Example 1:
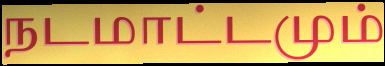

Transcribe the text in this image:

நடமாட்டமும்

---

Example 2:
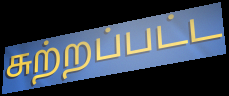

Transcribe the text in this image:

சுற்றப்பட்ட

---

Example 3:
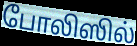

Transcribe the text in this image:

போலிஸில்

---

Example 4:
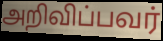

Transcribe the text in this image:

அறிவிப்பவர்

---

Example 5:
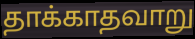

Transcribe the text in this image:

தாக்காதவாறு